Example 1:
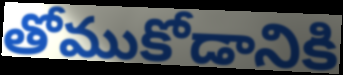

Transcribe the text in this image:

తోముకోడానికి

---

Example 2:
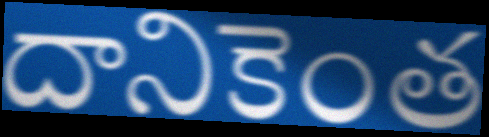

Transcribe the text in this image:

దానికెంత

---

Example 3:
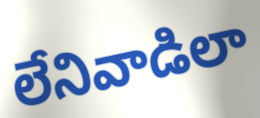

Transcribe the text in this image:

లేనివాడిలా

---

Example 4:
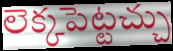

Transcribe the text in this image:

లెక్కపెట్టచ్చు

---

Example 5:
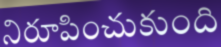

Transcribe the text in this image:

నిరూపించుకుంది